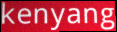
kenyang